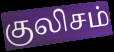
குலிசம்